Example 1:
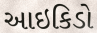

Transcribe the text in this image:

આઇકિડો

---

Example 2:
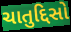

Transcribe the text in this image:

ચાતુદ્દિસો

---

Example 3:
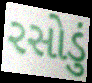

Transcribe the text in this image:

રસોડું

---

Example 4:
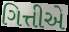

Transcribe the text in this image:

ગિત્તીએ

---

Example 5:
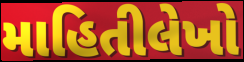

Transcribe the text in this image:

માહિતીલેખો